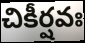
చికీర్షవః